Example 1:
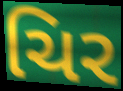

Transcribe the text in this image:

ચિર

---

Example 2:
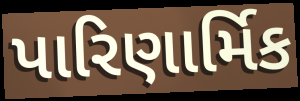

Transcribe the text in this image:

પારિણાર્મિક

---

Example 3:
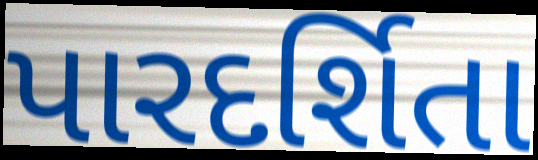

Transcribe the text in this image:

પારદર્શિતા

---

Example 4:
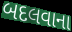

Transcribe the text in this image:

બદલવાના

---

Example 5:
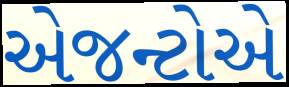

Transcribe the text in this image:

એજન્ટોએ